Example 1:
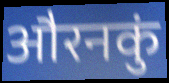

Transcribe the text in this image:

औरनकुं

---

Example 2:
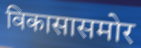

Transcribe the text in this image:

विकासासमोर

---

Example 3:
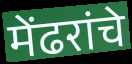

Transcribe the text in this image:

मेंढरांचे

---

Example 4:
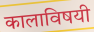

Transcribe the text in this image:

कालाविषयी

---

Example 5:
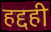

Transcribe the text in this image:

हद्दही